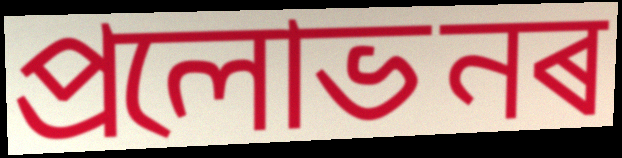
প্ৰলোভনৰ